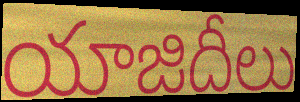
యాజిదీలు